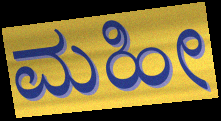
ಮಹೀ